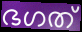
ഭഗത്